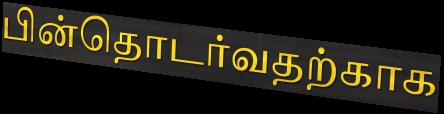
பின்தொடர்வதற்காக